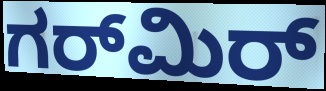
ಗರ್‌ಮಿರ್